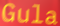
Gula